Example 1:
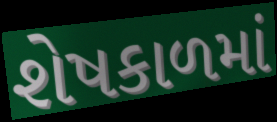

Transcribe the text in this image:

શેષકાળમાં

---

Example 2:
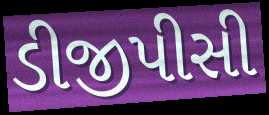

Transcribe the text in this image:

ડીજીપીસી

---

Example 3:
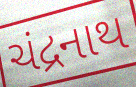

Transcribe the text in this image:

ચંદ્રનાથ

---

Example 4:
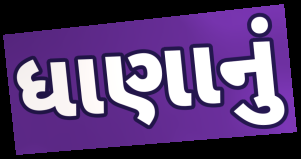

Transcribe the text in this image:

ધાણાનું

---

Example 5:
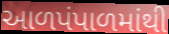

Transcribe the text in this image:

આળપંપાળમાંથી